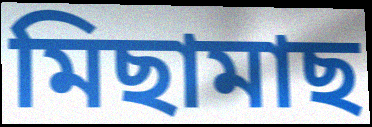
মিছামাছ